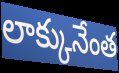
లాక్కునేంత